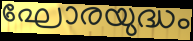
ഘോരയുദ്ധം